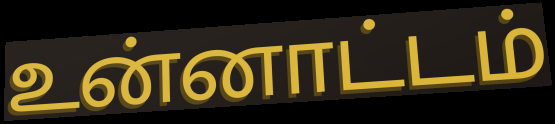
உன்னாட்டம்